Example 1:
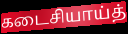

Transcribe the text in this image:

கடைசியாய்த்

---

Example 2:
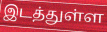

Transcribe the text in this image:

இடத்துள்ள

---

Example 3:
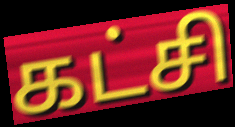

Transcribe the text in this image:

கட்சி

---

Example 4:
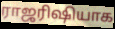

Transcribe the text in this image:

ராஜரிஷியாக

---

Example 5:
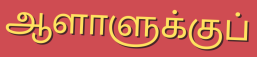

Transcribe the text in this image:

ஆளாளுக்குப்